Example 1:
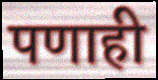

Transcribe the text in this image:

पणाही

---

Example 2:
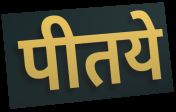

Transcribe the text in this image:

पीतये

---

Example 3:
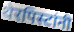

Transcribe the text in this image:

थेरपिस्टांनी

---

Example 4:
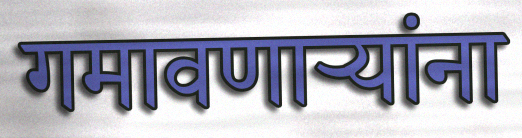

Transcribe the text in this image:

गमावणाऱ्यांना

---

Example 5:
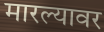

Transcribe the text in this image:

मारल्यावर